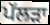
ਪੱਲੜਾ